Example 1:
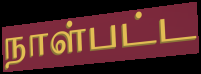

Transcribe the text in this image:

நாள்பட்ட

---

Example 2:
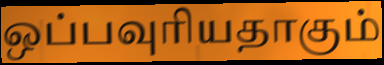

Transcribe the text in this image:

ஒப்பவுரியதாகும்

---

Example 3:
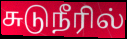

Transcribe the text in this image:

சுடுநீரில்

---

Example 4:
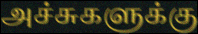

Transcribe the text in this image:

அச்சுகளுக்கு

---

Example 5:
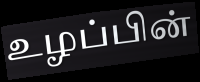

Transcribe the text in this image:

உழப்பின்